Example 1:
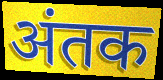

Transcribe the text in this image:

अंतक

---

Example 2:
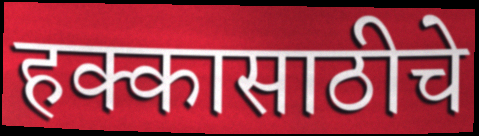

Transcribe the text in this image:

हक्कासाठीचे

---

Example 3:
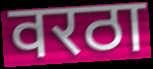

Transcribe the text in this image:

वरठा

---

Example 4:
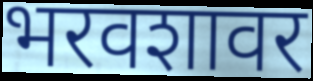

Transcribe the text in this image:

भरवशावर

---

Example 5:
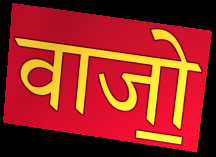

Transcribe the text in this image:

वाजो॒